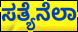
ಸತ್ಯೆನೆಲಾ